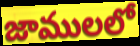
జాములలో